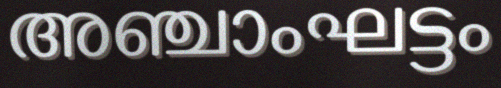
അഞ്ചാംഘട്ടം